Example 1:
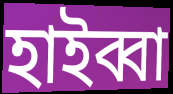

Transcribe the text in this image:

হাইব্বা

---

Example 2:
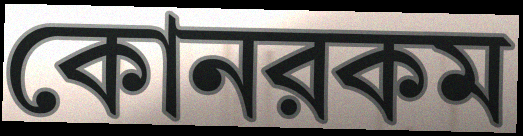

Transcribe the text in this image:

কোনরকম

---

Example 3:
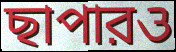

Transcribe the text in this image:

ছাপারও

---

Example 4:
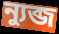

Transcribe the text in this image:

ন্যুব্জ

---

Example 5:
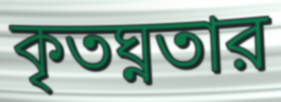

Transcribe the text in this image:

কৃতঘ্নতার